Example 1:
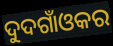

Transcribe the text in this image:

ଦୁଦଗାଁଓକର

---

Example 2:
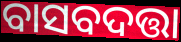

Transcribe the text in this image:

ବାସବଦତ୍ତା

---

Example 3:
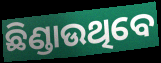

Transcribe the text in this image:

ଛିଣ୍ଡାଉଥିବେ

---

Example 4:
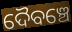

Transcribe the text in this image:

ଦୈବଞ୍ଚେ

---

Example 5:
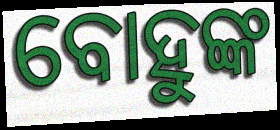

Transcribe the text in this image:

ବୋହୁଙ୍କ